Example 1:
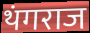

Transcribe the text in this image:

थंगराज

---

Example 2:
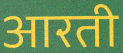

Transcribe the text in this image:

आरती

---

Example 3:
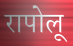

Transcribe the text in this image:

रापोलू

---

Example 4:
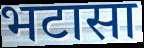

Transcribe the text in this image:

भटासा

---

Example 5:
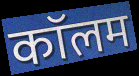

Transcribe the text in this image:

कॉलम